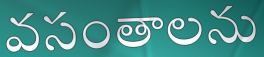
వసంతాలను